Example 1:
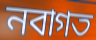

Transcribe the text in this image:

নবাগত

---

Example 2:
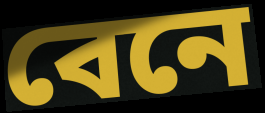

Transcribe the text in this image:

বেনে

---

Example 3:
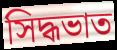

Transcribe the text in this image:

সিদ্ধভাত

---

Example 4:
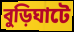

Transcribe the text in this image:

বুড়িঘাটে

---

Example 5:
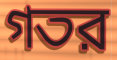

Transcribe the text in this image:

গতর